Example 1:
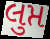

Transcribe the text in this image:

લુપ્ત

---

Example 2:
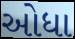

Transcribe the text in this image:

ઓધા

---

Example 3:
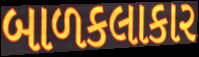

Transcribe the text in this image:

બાળકલાકાર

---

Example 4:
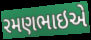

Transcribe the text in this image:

રમણભાઇએ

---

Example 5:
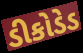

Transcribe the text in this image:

ડીકોડેડ